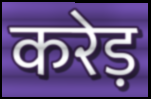
करेड़